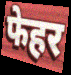
फेहर